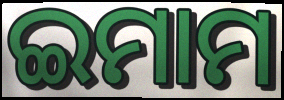
ଇମାମ